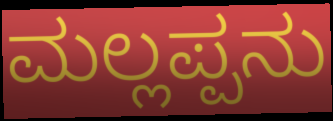
ಮಲ್ಲಪ್ಪನು